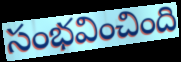
సంభవించింది